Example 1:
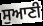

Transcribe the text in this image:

ਸੁਆਣੀ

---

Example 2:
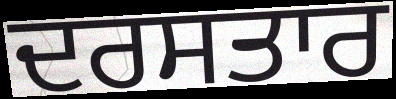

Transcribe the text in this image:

ਦਰਸਤਾਰ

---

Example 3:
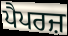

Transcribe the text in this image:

ਪੈਪਰਜ਼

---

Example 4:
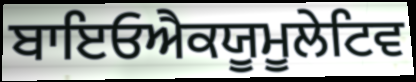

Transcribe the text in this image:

ਬਾਇਓਐਕਯੂਮੂਲੇਟਿਵ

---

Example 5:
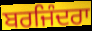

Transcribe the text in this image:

ਬਰਜਿੰਦਰਾ